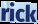
rick